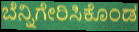
ಬೆನ್ನಿಗೇರಿಸಿಕೊಂಡ